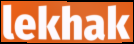
lekhak